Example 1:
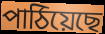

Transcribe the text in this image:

পাঠিয়েছে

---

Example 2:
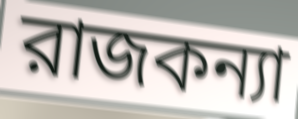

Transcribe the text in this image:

রাজকন্যা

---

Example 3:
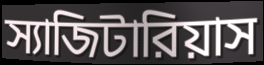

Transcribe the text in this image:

স্যাজিটারিয়াস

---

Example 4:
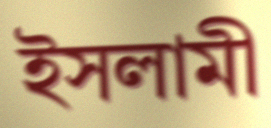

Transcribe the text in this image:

ইসলামী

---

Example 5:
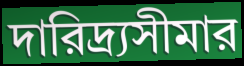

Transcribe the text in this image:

দারিদ্র্যসীমার